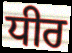
ਧੀਰ